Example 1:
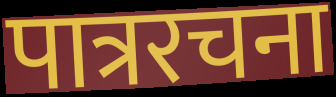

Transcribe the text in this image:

पात्ररचना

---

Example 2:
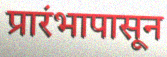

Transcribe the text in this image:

प्रारंभापासून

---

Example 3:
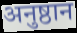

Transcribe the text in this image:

अनुष्ठान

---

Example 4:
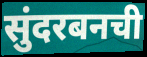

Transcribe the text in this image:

सुंदरबनची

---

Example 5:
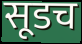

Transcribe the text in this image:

सूडच